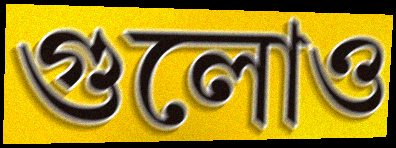
গুলোও